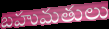
బహుమతులు